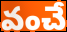
వంచే